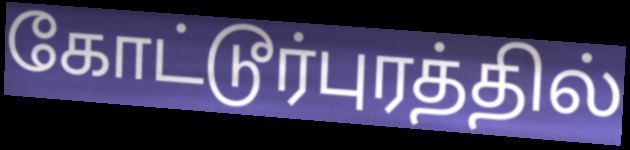
கோட்டூர்புரத்தில்